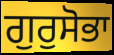
ਗੁਰੁਸੋਭਾ